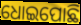
ଧୋଇପୋଛି